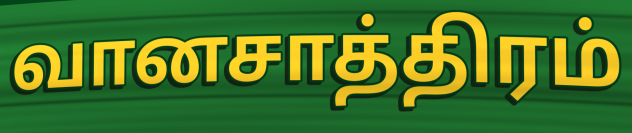
வானசாத்திரம்